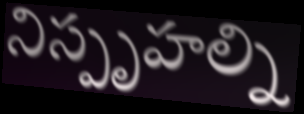
నిస్పృహల్ని